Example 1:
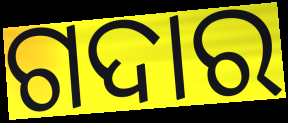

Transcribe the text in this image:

ଗଦାର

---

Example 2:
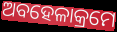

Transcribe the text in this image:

ଅବହେଳାକ୍ରମେ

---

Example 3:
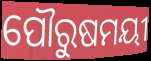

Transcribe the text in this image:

ପୌରୁଷମୟୀ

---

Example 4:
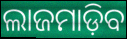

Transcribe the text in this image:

ଲାଜମାଡ଼ିବ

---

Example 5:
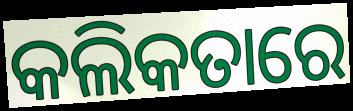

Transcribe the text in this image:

କଲିକତାରେ